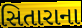
સિતારાના